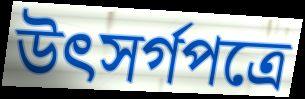
উৎসর্গপত্রে